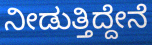
ನೀಡುತ್ತಿದ್ದೇನೆ